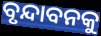
ବୃନ୍ଦାବନକୁ